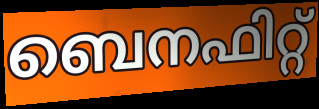
ബെനഫിറ്റ്